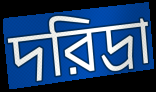
দরিদ্রা